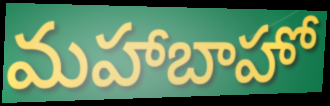
మహాబాహో